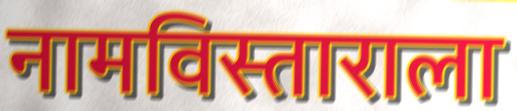
नामविस्ताराला